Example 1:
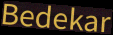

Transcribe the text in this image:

Bedekar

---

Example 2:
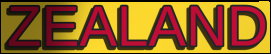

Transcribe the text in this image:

ZEALAND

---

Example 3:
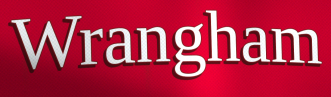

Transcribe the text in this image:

Wrangham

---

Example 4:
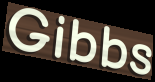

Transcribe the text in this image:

Gibbs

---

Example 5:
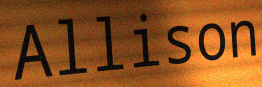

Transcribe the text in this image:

Allison